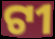
ଟୀ